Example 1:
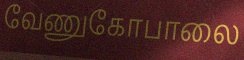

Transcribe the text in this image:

வேணுகோபாலை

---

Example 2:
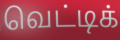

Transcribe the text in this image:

வெட்டிக்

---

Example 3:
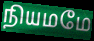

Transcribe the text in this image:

நியமமே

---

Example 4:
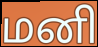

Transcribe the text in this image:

மனி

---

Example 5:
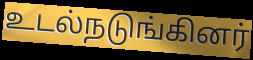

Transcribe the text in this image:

உடல்நடுங்கினர்